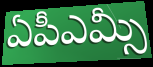
ఏపీఎమ్సీ